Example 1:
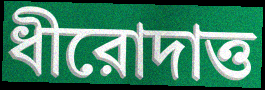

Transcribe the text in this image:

ধীরোদাত্ত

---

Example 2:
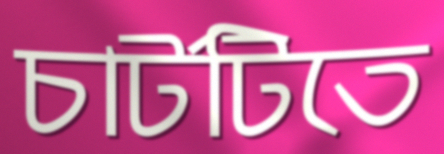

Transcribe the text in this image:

চার্টটিতে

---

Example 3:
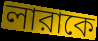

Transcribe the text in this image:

লারাকে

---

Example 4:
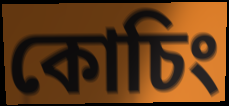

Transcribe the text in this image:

কোচিং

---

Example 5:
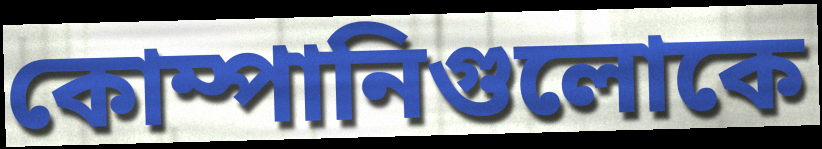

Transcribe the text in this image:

কোম্পানিগুলোকে